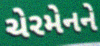
ચેરમેનને